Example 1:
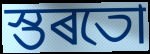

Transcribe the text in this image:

স্তৰতো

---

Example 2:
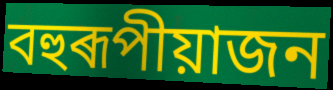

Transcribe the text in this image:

বহুৰূপীয়াজন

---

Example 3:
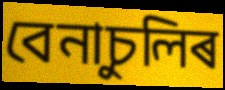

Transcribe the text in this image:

বেনাচুলিৰ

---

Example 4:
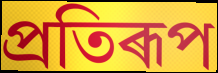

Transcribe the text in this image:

প্ৰতিৰূপ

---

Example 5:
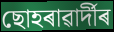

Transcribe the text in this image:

ছোহৰাৱাৰ্দীৰ